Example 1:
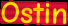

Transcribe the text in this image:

Ostin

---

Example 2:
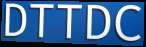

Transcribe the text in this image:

DTTDC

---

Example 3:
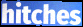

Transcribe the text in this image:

hitches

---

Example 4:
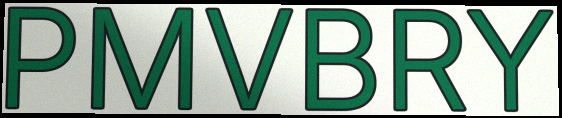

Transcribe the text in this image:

PMVBRY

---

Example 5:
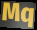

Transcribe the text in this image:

Mq